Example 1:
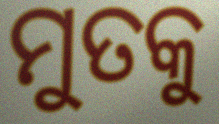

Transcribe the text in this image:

ମୁତକୁ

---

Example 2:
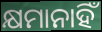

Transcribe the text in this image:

କ୍ଷମାନାହିଁ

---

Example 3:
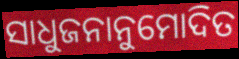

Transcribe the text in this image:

ସାଧୁଜନାନୁମୋଦିତ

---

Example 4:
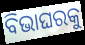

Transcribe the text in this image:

ବିଭାଘରକୁ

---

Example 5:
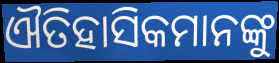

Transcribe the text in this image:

ଐତିହାସିକମାନଙ୍କୁ